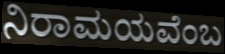
ನಿರಾಮಯವೆಂಬ